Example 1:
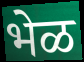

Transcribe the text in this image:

भेळ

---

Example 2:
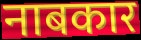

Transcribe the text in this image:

नाबकार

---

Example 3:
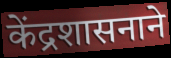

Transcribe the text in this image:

केंद्रशासनाने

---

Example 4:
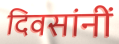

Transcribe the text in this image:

दिवसांनीं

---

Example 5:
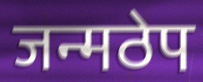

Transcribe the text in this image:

जन्मठेप